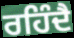
ਰਹਿੰਦੈ